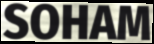
SOHAM